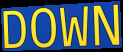
DOWN